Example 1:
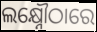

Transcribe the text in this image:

ଲକ୍ଷ୍ନୌଠାରେ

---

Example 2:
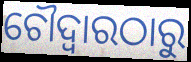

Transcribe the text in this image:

ଚୌଦ୍ୱାରଠାରୁ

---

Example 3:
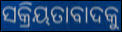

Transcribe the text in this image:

ସକ୍ରିୟତାବାଦକୁ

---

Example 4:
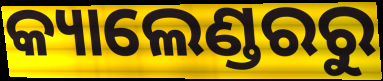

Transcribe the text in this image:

କ୍ୟାଲେଣ୍ଡରରୁ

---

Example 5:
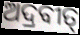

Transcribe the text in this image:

ଅଦ୍ରବୀତ୍